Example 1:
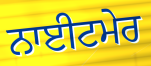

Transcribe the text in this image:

ਨਾਈਟਮੇਰ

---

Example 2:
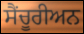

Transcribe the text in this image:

ਸੈਂਚੂਰੀਅਨ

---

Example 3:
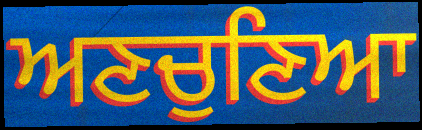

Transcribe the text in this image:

ਅਣਚੁਣਿਆ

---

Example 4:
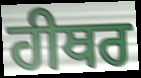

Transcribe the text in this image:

ਹੀਥਰ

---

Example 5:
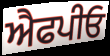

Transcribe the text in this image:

ਐਫਪੀਓ